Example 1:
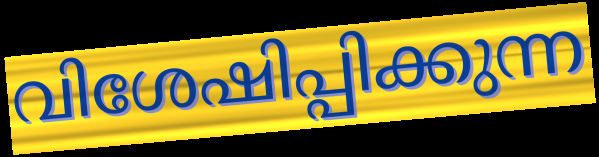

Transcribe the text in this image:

വിശേഷിപ്പിക്കുന്ന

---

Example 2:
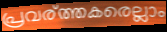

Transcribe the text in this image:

പ്രവര്ത്തകരെല്ലാം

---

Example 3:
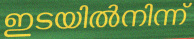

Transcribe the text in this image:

ഇടയിൽനിന്ന്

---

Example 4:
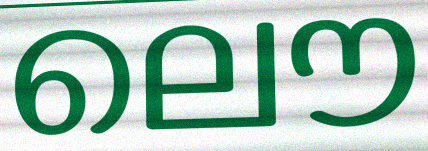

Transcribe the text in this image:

ലൌ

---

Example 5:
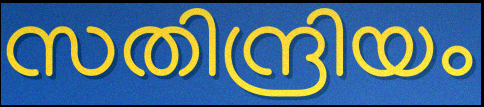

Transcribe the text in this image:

സതിന്ദ്രിയം